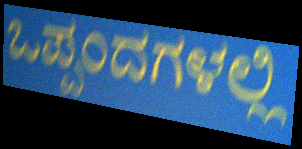
ಒಪ್ಪಂದಗಳಲ್ಲಿ